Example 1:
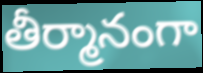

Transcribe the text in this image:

తీర్మానంగా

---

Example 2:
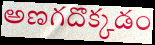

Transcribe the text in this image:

అణగదొక్కడం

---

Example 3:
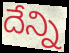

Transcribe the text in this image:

దేన్ని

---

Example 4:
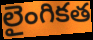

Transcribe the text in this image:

లైంగికత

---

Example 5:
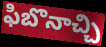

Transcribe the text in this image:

ఫిబొనాచ్చి